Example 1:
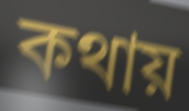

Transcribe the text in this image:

কথায়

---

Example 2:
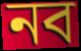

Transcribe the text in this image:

নব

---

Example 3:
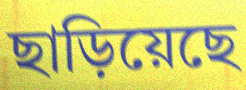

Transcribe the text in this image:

ছাড়িয়েছে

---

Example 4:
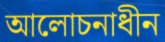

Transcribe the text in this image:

আলোচনাধীন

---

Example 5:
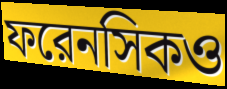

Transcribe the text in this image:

ফরেনসিকও